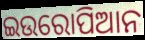
ଇଉରୋପିଆନ